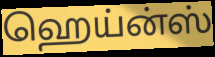
ஹெய்ன்ஸ்